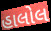
હાલોલ